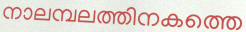
നാലമ്പലത്തിനകത്തെ